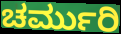
ಚರ್ಮುರಿ